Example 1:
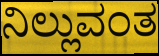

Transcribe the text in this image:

ನಿಲ್ಲುವಂತ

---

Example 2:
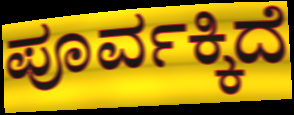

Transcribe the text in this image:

ಪೂರ್ವಕ್ಕಿದೆ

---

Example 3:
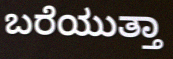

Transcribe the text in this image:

ಬರೆಯುತ್ತಾ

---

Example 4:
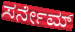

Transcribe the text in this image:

ಸರ್ನೇಮ್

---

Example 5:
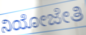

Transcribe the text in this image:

ನಿಯೋಜೇತಿ